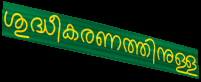
ശുദ്ധീകരണത്തിനുള്ള